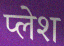
प्लेश